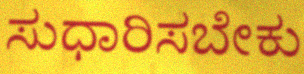
ಸುಧಾರಿಸಬೇಕು